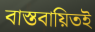
বাস্তবায়িতই